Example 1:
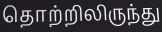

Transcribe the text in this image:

தொற்றிலிருந்து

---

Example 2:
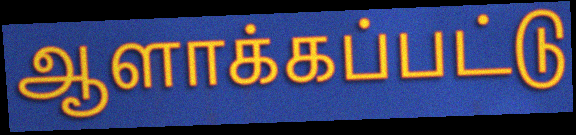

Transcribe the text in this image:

ஆளாக்கப்பட்டு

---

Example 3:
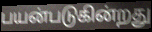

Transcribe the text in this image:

பயன்படுகின்றது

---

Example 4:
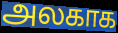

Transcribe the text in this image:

அலகாக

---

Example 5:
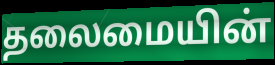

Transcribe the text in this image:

தலைமையின்